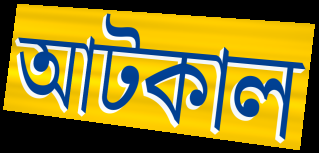
আটকাল